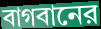
বাগবানের